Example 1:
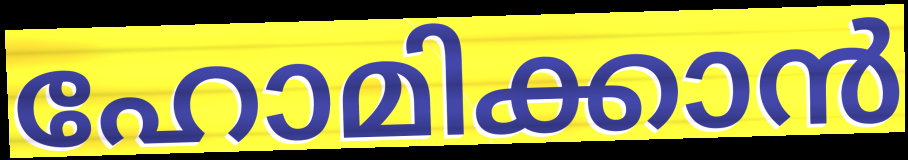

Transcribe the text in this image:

ഹോമിക്കാൻ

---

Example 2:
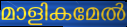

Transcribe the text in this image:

മാളികമേൽ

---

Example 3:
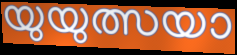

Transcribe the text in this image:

യുയുത്സയാ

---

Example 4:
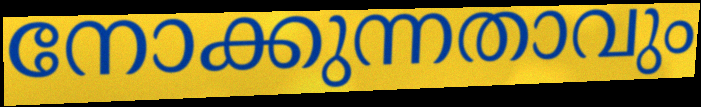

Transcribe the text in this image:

നോക്കുന്നതാവും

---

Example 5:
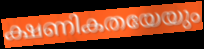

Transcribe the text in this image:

ക്ഷണികതയേയും